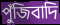
পুঁজিবাদি